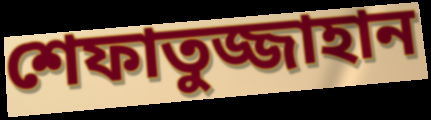
শেফাতুজ্জাহান